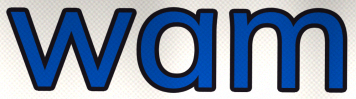
wam